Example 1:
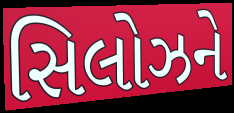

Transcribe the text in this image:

સિલોઝને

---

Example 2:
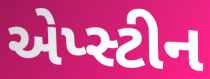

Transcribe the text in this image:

એપ્સ્ટીન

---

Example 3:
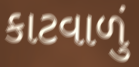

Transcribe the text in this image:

કાટવાળું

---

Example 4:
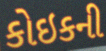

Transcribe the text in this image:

કોઇકની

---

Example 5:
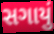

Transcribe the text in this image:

સગાયું